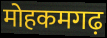
मोहकमगढ़